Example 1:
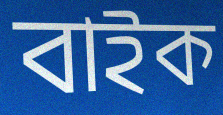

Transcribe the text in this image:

বাইক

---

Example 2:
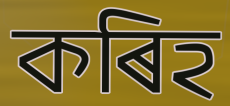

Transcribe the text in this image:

কৰিহ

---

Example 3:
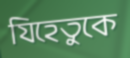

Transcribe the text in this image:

যিহেতুকে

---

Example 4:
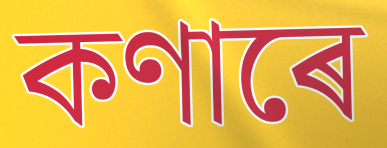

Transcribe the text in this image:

কণাৰে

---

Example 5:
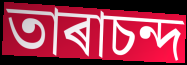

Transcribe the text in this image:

তাৰাচন্দ